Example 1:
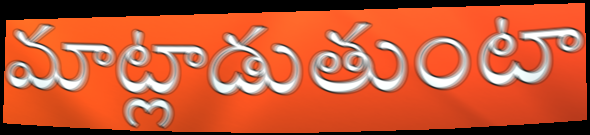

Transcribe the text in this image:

మాట్లాడుతుంటా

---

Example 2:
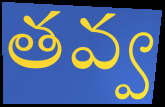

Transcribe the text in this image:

తవ్వ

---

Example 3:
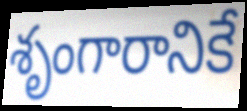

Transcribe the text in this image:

శృంగారానికే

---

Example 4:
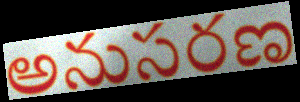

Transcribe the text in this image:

అనుసరణ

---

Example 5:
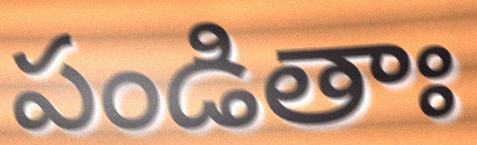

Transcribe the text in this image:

పండితాః